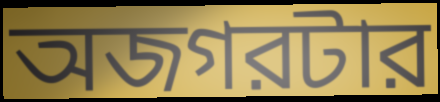
অজগরটার